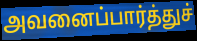
அவனைப்பார்த்துச்